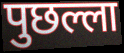
पुछल्ला